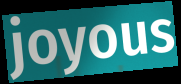
joyous